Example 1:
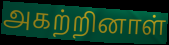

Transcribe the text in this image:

அகற்றினாள்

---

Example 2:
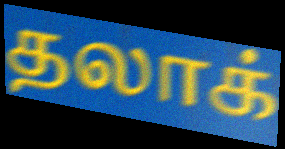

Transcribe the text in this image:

தலாக்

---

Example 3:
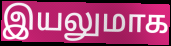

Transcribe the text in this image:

இயலுமாக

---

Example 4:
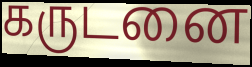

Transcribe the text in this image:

கருடனை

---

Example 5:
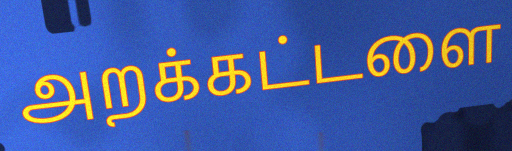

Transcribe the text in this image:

அறக்கட்டளை